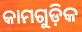
କାମଗୁଡ଼ିକ